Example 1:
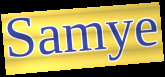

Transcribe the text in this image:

Samye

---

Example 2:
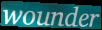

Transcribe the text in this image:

wounder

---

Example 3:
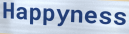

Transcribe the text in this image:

Happyness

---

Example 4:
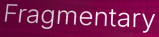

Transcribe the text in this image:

Fragmentary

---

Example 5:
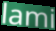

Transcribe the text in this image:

lami